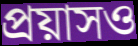
প্রয়াসও